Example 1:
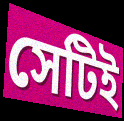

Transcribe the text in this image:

সেটিই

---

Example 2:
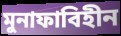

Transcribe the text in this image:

মুনাফাবিহীন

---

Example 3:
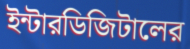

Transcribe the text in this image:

ইন্টারডিজিটালের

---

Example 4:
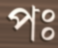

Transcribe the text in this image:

পঃ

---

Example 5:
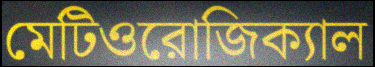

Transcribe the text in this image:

মেটিওরোজিক্যাল